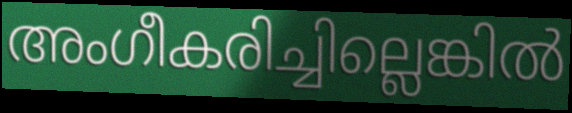
അംഗീകരിച്ചില്ലെങ്കിൽ